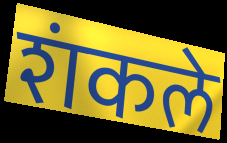
शंकले